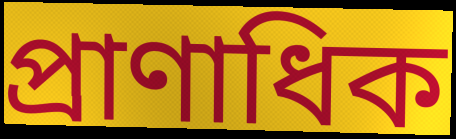
প্রাণাধিক